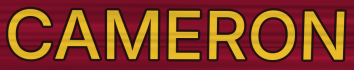
CAMERON